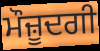
ਮੌਜ਼ੂਦਗੀ